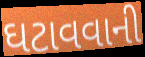
ઘટાવવાની